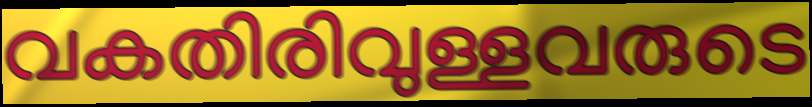
വകതിരിവുള്ളവരുടെ